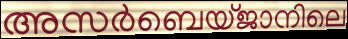
അസർബെയ്ജാനിലെ